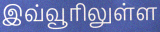
இவ்வூரிலுள்ள